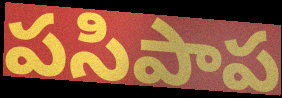
పసిపాప